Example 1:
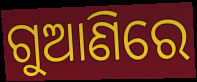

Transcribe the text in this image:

ଗୁଆଣିରେ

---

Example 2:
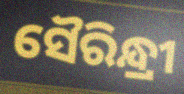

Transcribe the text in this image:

ସୈରିନ୍ଧ୍ରୀ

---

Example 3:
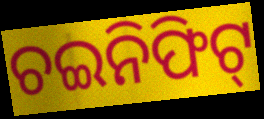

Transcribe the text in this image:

ଚଇନିଫିଟ୍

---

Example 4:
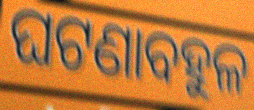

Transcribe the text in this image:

ଘଟଣାବହୁଳ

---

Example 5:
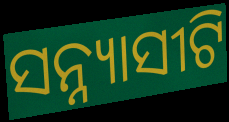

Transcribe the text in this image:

ସନ୍ନ୍ୟାସୀଟି